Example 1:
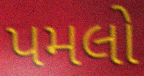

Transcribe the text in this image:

પમલો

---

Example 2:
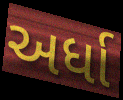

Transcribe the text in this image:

અર્ધા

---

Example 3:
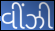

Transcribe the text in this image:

વીંઝી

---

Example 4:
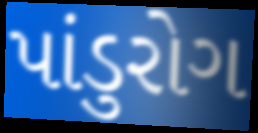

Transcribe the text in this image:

પાંડુરોગ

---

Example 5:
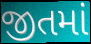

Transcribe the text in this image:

જીતમાં